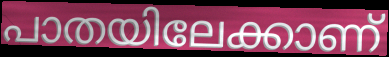
പാതയിലേക്കാണ്